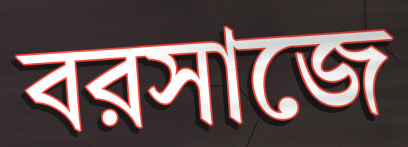
বরসাজে